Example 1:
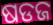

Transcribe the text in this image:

ଷଡଜ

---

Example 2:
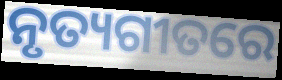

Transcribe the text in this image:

ନୃତ୍ୟଗୀତରେ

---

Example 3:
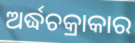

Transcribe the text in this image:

ଅର୍ଦ୍ଧଚକ୍ରାକାର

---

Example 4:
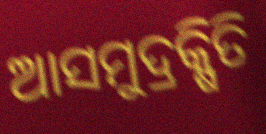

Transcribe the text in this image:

ଆସମୁଦ୍ରକ୍ଷିତି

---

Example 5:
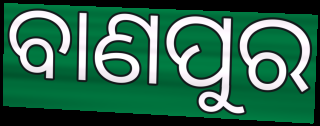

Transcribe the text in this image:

ବାଣପୁର